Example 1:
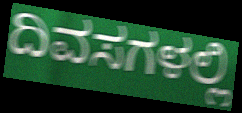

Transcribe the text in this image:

ದಿವಸಗಳಲ್ಲಿ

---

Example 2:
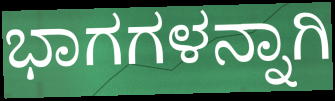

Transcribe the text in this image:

ಭಾಗಗಳನ್ನಾಗಿ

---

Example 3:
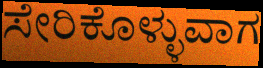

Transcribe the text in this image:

ಸೇರಿಕೊಳ್ಳುವಾಗ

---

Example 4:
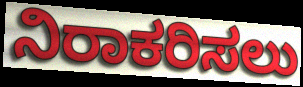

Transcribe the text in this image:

ನಿರಾಕರಿಸಲು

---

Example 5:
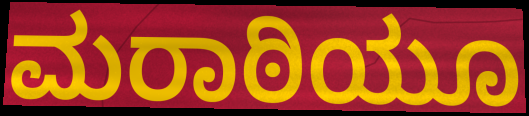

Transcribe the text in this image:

ಮರಾಠಿಯೂ